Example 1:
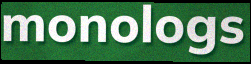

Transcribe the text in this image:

monologs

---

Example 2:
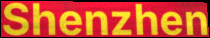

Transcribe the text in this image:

Shenzhen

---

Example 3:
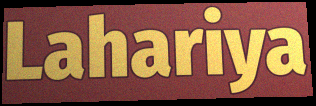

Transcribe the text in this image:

Lahariya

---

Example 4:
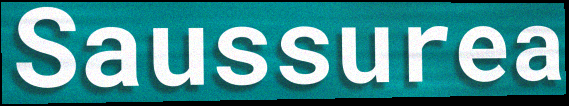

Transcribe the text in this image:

Saussurea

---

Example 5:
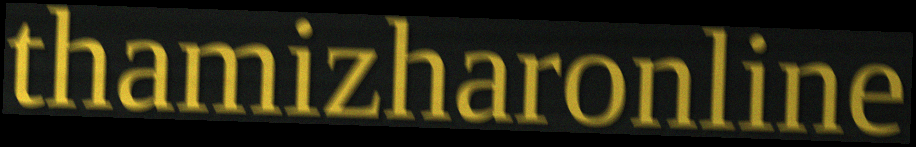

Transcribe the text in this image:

thamizharonline